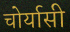
चोर्यासी